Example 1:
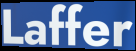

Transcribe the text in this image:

Laffer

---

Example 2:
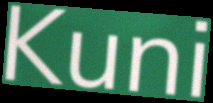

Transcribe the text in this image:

Kuni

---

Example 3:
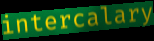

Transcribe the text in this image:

intercalary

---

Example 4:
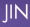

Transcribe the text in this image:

JIN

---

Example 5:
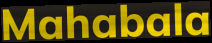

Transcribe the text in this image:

Mahabala